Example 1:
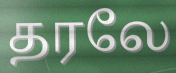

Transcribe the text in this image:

தரலே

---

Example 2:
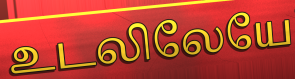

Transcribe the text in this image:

உடலிலேயே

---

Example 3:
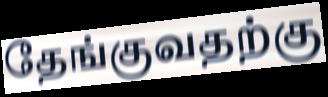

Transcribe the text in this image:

தேங்குவதற்கு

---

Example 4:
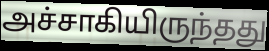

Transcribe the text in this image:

அச்சாகியிருந்தது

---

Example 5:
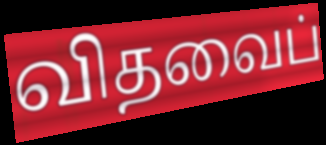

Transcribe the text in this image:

விதவைப்